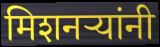
मिशनर्‍यांनी